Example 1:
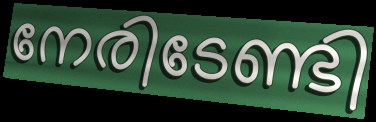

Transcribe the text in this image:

നേരിടേണ്ടി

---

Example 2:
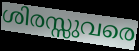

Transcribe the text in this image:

ശിരസ്സുവരെ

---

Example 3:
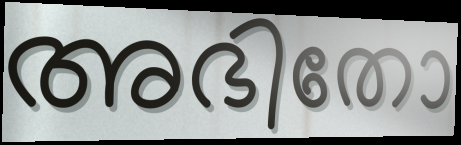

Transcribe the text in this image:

അഭിതോ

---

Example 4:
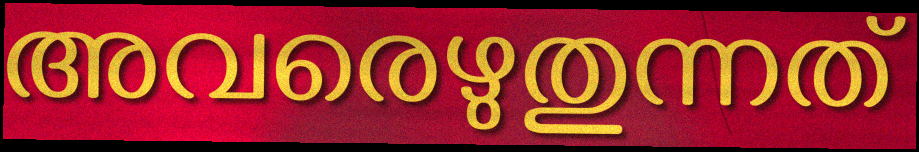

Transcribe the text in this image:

അവരെഴുതുന്നത്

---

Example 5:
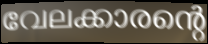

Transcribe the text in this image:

വേലക്കാരന്റെ